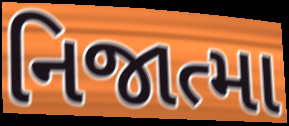
નિજાત્મા